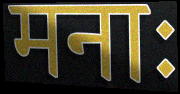
मनाः